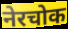
नेरचोक